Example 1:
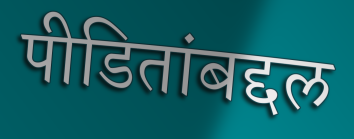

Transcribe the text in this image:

पीडितांबद्दल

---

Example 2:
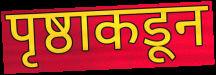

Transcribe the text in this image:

पृष्ठाकडून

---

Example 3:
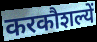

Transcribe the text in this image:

करकौशल्यें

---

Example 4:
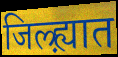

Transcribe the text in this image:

जिल्ह्य़ात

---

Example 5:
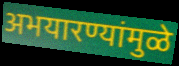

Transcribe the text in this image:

अभयारण्यांमुळे